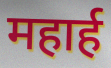
महार्ह